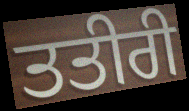
ਤਤੀਰੀ